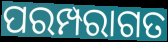
ପରମ୍ପରାଗତ